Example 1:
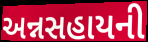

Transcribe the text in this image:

અન્નસહાયની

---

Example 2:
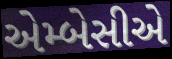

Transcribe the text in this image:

એમ્બેસીએ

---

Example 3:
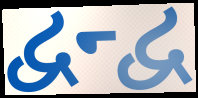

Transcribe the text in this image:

દ્વન્દ્વ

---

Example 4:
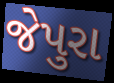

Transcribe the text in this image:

જેપુરા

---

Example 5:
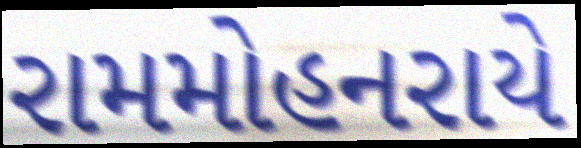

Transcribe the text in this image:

રામમોહનરાયે